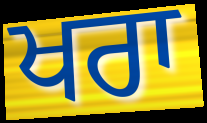
ਖਰਾ